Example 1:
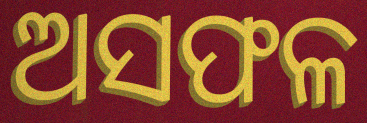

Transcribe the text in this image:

ଅସଫଳ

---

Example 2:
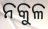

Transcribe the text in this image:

ନକୁଳ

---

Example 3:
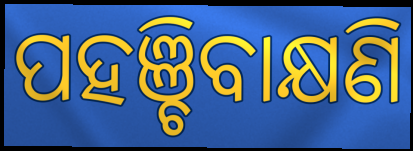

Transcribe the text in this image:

ପହଞ୍ଚିବାକ୍ଷଣି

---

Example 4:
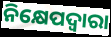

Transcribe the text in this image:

ନିକ୍ଷେପଦ୍ୱାରା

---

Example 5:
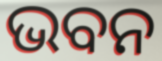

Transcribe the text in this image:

ଭବନ